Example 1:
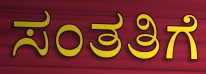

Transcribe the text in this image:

ಸಂತತಿಗೆ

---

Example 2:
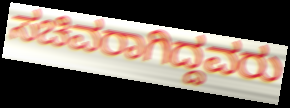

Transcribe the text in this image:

ಸಚಿವರಾಗಿದ್ದವರು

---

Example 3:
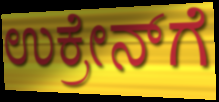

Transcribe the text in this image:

ಉಕ್ರೇನ್‌ಗೆ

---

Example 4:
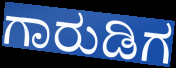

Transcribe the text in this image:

ಗಾರುಡಿಗ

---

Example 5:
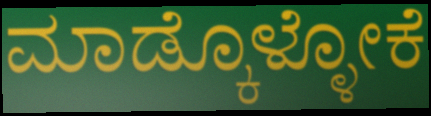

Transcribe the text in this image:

ಮಾಡ್ಕೊಳ್ಳೋಕೆ